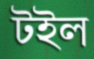
টইল